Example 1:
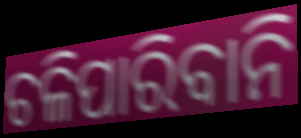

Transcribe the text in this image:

ଚଳିପାରିବାନି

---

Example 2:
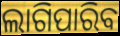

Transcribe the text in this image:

ଲାଗିପାରିବ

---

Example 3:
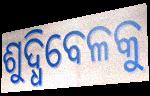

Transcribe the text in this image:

ଶୁଦ୍ଧିବେଳକୁ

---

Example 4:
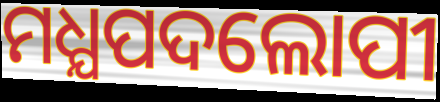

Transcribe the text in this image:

ମଧ୍ଯପଦଲୋପୀ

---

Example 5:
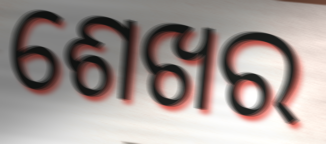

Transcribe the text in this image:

ଶେଖର